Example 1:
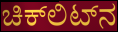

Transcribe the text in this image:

ಚಿಕ್‌ಲಿಟ್‌ನ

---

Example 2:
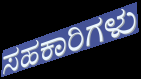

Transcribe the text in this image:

ಸಹಕಾರಿಗಳು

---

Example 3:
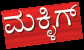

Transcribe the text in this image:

ಮಕ್ಳಿಗ್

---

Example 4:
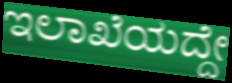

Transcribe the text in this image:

ಇಲಾಖೆಯದ್ದೇ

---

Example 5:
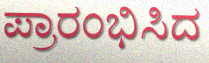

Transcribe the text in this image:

ಪ್ರಾರಂಭಿಸಿದ